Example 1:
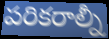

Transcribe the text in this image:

పరికరాల్నీ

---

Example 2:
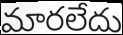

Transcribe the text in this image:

మారలేదు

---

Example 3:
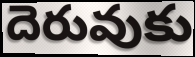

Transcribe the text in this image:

దెరువుకు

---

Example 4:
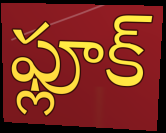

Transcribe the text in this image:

ఫ్లూక్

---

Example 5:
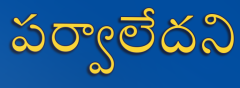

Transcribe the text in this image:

పర్వాలేదని